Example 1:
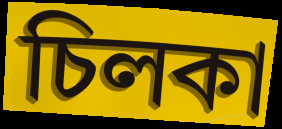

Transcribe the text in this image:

চিলকা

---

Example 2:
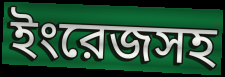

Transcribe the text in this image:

ইংরেজসহ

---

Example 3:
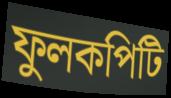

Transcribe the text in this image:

ফুলকপিটি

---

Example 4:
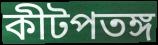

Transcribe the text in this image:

কীটপতঙ্গ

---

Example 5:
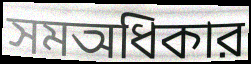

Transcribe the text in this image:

সমঅধিকার